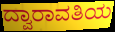
ದ್ವಾರಾವತಿಯ